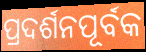
ପ୍ରଦର୍ଶନପୂର୍ବକ